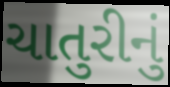
ચાતુરીનું